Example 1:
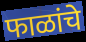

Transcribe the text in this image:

फाळांचे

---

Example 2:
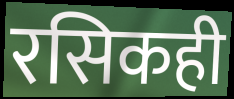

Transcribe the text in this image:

रसिकही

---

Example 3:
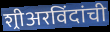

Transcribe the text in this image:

श्रीअरविंदांची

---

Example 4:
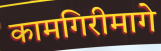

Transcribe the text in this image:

कामगिरीमागे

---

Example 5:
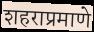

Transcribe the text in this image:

शहराप्रमाणे